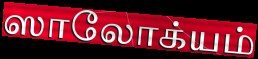
ஸாலோக்யம்